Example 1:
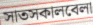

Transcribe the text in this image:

সাতসকালবেলা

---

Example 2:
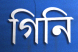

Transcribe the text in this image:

গিনি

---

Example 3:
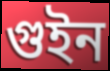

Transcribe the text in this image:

গুইন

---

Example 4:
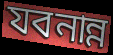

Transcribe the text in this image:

যবনান্ন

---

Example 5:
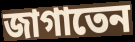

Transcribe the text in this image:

জাগাতেন